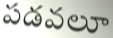
పడవలూ